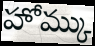
హోమ్కు